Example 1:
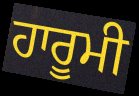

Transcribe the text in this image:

ਹਾਰੂਮੀ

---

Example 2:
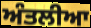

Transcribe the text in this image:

ਅੰਤਲੀਆ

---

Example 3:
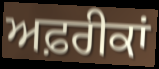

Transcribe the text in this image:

ਅਫ਼ਰੀਕਾਂ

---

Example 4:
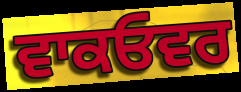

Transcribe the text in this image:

ਵਾਕਓਵਰ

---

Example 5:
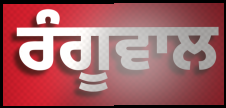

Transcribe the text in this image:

ਰੰਗੂਵਾਲ